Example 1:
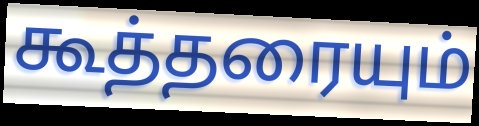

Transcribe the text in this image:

கூத்தரையும்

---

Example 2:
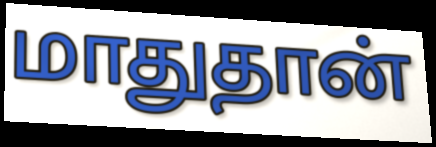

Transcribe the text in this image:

மாதுதான்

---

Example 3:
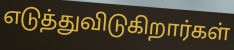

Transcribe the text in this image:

எடுத்துவிடுகிறார்கள்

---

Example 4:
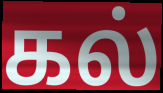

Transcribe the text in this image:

கல்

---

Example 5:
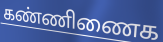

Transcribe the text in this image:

கண்ணிணைக